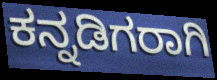
ಕನ್ನಡಿಗರಾಗಿ